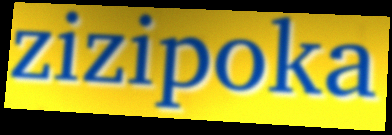
zizipoka